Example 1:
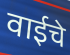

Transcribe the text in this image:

वाईचे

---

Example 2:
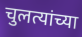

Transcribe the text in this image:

चुलत्यांच्या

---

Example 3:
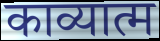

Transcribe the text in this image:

काव्यात्म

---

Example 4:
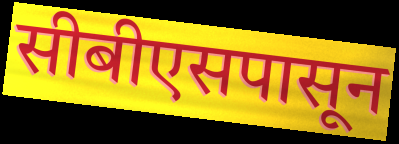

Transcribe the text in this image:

सीबीएसपासून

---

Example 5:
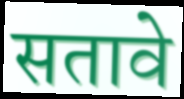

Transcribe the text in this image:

सतावे